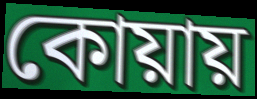
কোয়ায়